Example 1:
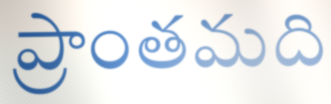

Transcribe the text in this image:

ప్రాంతమది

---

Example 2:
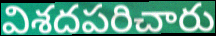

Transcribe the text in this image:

విశదపరిచారు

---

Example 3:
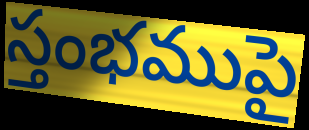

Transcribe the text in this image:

స్తంభముపై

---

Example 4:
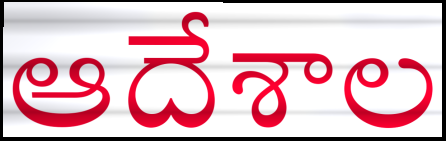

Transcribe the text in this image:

ఆదేశాల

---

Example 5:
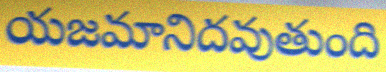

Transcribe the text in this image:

యజమానిదవుతుంది